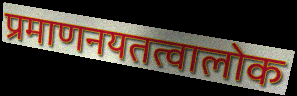
प्रमाणनयतत्वालोक